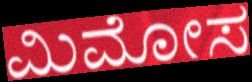
ಮಿಮೋಸ